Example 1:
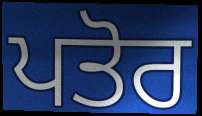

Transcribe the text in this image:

ਪਤੋਰ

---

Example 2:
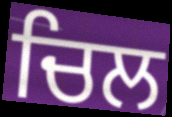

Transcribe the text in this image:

ਚਿਲ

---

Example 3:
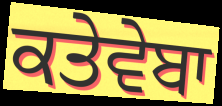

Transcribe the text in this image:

ਕਤੇਵੇਬਾ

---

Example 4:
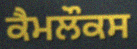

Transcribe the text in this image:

ਕੈਮਲੌਕਸ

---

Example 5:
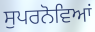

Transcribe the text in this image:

ਸੁਪਰਨੋਵਿਆਂ